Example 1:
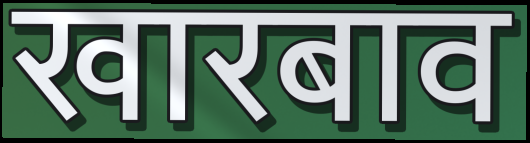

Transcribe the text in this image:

खारबाव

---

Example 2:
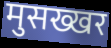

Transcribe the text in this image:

मुसख्खर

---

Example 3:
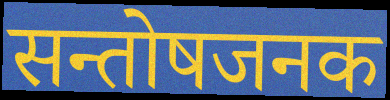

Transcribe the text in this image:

सन्तोषजनक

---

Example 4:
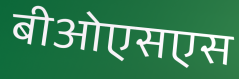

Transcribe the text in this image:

बीओएसएस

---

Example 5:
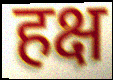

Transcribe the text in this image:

हक्ष